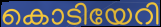
കൊടിയേറി